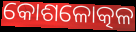
କୋଶଳୋତ୍କଳ